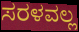
ಸರಳವಲ್ಲ